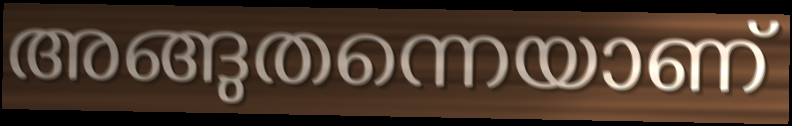
അങ്ങുതന്നെയാണ്